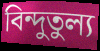
বিন্দুতুল্য